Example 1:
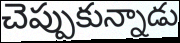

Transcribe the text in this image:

చెప్పుకున్నాడు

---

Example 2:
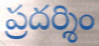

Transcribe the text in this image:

ప్రదర్శిం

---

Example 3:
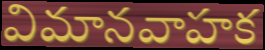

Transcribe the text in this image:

విమానవాహక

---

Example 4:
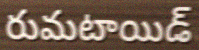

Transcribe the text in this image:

రుమటాయిడ్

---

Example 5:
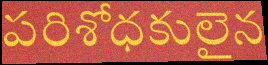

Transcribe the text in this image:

పరిశోధకులైన